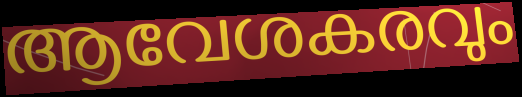
ആവേശകരവും